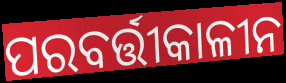
ପରବର୍ତ୍ତୀକାଳୀନ